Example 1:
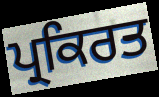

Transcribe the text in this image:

ਪ੍ਰਕਿਰਤ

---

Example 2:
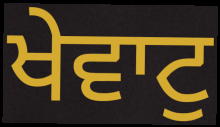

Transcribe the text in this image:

ਖੇਵਾਟੁ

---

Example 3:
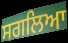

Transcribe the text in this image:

ਸਗਲਿਆ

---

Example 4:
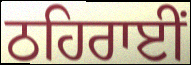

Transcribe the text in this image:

ਠਹਿਰਾਈਂ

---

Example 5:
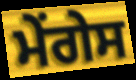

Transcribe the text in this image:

ਮੇਂਗੇਸ